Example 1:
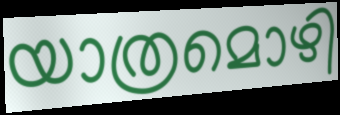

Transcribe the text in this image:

യാത്രമൊഴി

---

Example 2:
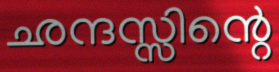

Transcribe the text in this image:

ഛന്ദസ്സിന്റെ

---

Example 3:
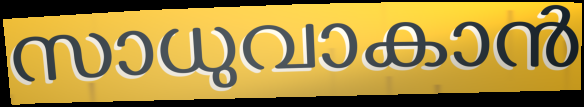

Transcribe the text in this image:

സാധുവാകാൻ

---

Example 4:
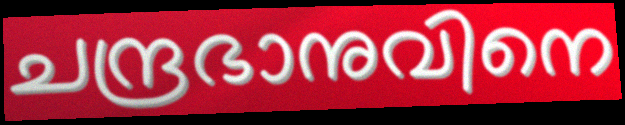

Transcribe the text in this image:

ചന്ദ്രഭാനുവിനെ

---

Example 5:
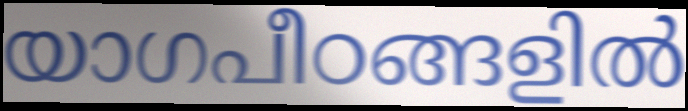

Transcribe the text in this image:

യാഗപീഠങ്ങളിൽ